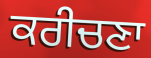
ਕਰੀਚਣਾ